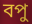
বপু